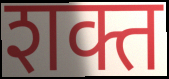
शक्त